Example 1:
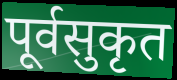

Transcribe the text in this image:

पूर्वसुकृत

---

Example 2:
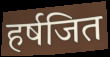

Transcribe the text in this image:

हर्षजित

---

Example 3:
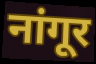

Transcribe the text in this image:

नांगूर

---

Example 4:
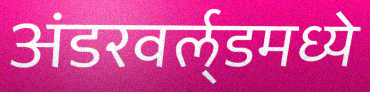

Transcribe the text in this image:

अंडरवर्ल्डमध्ये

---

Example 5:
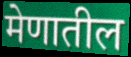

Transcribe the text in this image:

मेणातील